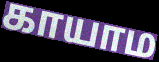
காயாம